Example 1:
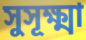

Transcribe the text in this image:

সুসূক্ষ্মা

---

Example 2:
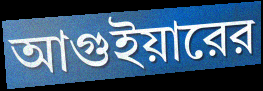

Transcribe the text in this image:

আগুইয়ারের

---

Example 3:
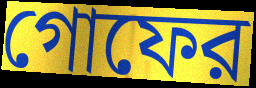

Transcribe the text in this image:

গোফের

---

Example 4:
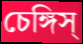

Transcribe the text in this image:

চেঙ্গিস্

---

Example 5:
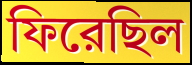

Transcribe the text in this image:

ফিরেছিল